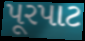
પૂરપાટ